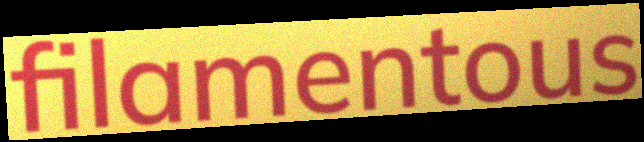
filamentous